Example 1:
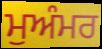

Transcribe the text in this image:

ਮੁਅੰਮਰ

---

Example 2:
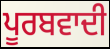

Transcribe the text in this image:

ਪੂਰਬਵਾਦੀ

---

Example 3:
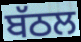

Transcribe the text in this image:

ਬੱਠਲ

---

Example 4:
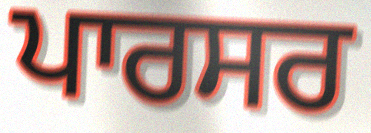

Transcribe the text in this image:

ਪਾਰਸਰ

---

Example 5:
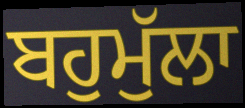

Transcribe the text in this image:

ਬਹੁਮੁੱਲਾ